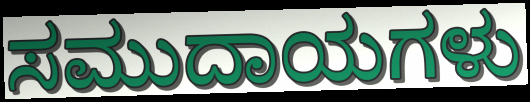
ಸಮುದಾಯಗಳು